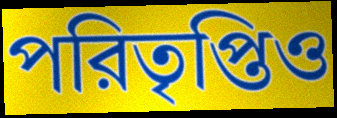
পরিতৃপ্তিও